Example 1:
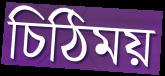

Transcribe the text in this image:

চিঠিময়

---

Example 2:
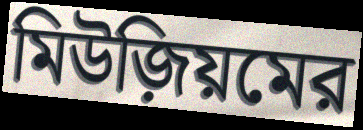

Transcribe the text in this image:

মিউজ়িয়মের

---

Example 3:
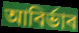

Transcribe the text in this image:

আবির্ভাব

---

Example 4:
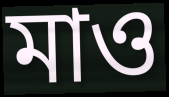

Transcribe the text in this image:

মাও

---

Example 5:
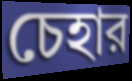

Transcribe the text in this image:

চেহার